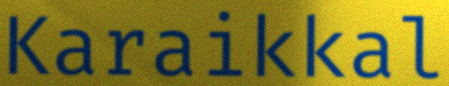
Karaikkal